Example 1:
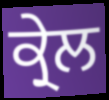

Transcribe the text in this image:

ਕ੍ਰੇਲ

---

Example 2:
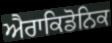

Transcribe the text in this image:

ਐਰਾਕਿਡੋਨਿਕ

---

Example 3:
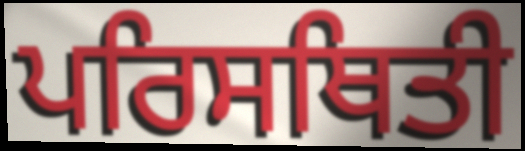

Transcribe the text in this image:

ਪਰਿਸਥਿਤੀ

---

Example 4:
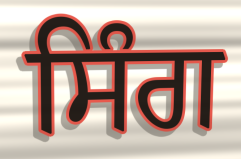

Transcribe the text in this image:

ਸਿੰਗ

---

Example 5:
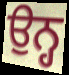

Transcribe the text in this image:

ਉਨ੍ਹ੍ਹ